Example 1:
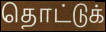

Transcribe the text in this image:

தொட்டுக்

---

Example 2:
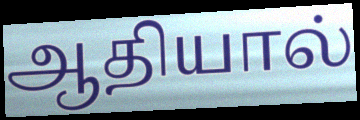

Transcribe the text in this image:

ஆதியால்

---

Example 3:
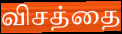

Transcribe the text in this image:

விசத்தை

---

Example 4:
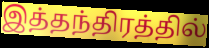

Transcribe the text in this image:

இத்தந்திரத்தில்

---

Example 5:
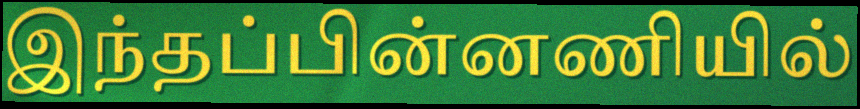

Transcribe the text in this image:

இந்தப்பின்னணியில்